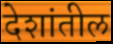
देशांतील